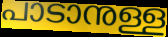
പാടാനുള്ള